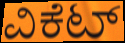
ವಿಕೆಟ್